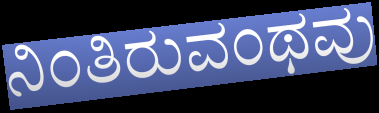
ನಿಂತಿರುವಂಥವು